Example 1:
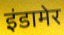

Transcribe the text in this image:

इंडामेर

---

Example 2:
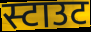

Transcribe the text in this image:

स्टाउट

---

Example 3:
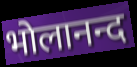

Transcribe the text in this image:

भोलानन्द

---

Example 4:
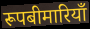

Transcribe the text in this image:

रूपबीमारियाँ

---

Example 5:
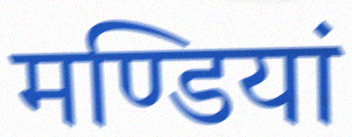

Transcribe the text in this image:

मण्डियां